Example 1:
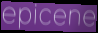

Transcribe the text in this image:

epicene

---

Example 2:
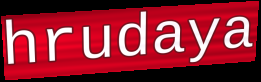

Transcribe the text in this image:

hrudaya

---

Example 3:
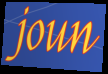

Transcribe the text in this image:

joun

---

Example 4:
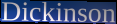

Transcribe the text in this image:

Dickinson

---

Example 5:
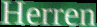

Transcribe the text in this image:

Herren